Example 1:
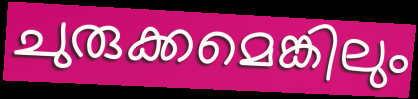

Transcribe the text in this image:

ചുരുക്കമെങ്കിലും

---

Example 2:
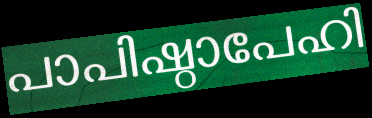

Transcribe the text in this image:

പാപിഷ്ഠാപേഹി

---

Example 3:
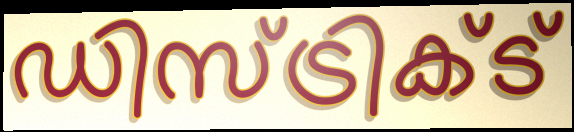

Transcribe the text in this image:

ഡിസ്ട്രിക്ട്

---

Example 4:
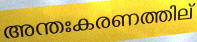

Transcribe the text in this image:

അന്തഃകരണത്തില്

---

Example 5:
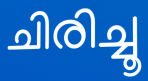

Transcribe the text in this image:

ചിരിച്ചൂ